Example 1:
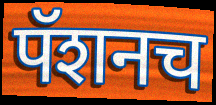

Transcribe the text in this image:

पॅशनच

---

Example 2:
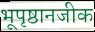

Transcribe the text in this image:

भूपृष्ठानजीक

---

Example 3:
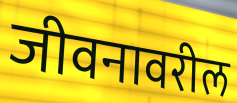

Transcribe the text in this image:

जीवनावरील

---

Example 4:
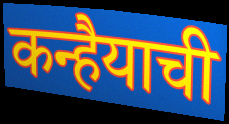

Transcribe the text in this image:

कन्हैयाची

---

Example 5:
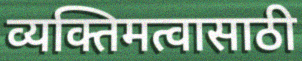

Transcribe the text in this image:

व्यक्तिमत्वासाठी